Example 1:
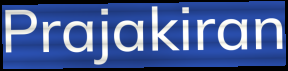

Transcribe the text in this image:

Prajakiran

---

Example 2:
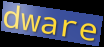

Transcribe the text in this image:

dware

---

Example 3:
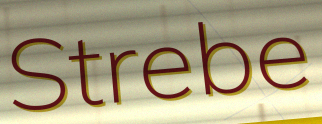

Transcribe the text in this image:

Strebe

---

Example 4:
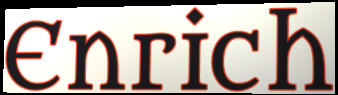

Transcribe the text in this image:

Enrich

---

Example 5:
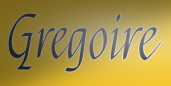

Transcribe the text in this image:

Gregoire